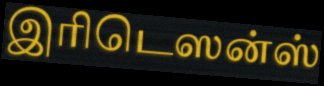
இரிடெஸன்ஸ்